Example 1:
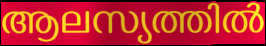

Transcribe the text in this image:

ആലസ്യത്തിൽ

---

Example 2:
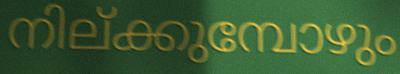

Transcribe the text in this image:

നില്ക്കുമ്പോഴും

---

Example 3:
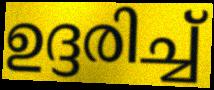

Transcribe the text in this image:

ഉദ്ദരിച്ച്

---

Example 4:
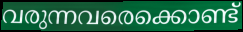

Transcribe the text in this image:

വരുന്നവരെക്കൊണ്ട്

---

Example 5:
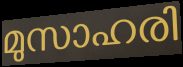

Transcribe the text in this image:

മുസാഹരി